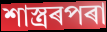
শাস্ত্ৰৰপৰা